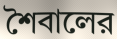
শৈবালের